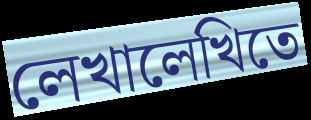
লেখালেখিতে